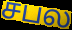
சபல